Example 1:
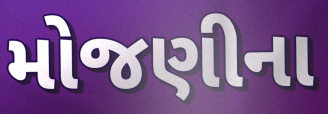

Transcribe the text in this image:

મોજણીના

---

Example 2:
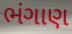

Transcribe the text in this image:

ભંગાણ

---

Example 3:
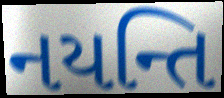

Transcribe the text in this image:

નયન્તિ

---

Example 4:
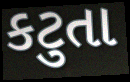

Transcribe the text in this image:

કટુતા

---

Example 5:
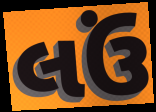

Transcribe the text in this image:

લઉં